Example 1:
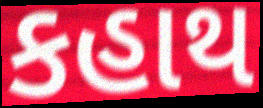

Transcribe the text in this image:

કહાથ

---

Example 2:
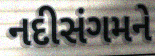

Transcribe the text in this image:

નદીસંગમને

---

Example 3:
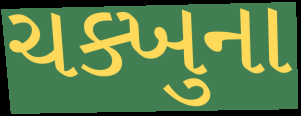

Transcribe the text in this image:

ચક્ખુના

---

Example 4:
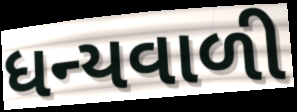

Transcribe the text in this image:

ધન્યવાળી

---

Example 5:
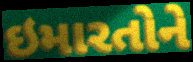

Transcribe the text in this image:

ઇમારતોને